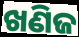
ଖଣିଜ